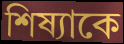
শিষ্যাকে